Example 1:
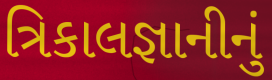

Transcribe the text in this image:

ત્રિકાલજ્ઞાનીનું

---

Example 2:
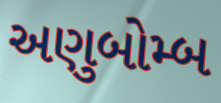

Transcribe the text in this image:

અણુબોમ્બ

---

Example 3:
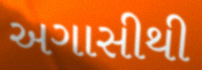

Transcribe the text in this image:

અગાસીથી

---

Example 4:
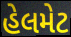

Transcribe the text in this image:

હેલમેટ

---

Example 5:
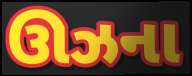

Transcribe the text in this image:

ઊઝના